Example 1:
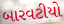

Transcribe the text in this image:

બારવટીયો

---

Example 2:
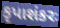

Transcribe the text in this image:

કૃપાશંકરઃ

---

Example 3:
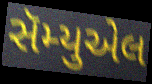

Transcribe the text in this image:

સૅમ્યુએલ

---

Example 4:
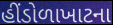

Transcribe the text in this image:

હીંડોળાખાટના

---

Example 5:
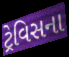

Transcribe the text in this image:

ટ્રેવિસના